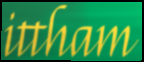
ittham